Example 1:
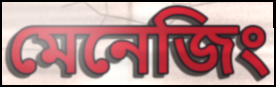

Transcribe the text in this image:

মেনেজিং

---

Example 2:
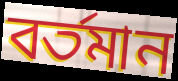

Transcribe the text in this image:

বৰ্তমান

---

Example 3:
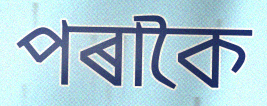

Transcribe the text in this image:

পৰাকৈ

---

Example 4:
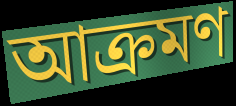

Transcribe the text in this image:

আক্ৰমণ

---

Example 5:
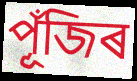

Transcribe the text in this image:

পূঁজিৰ